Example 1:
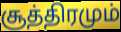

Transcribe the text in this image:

சூத்திரமும்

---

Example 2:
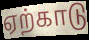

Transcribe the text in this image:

ஏற்காடு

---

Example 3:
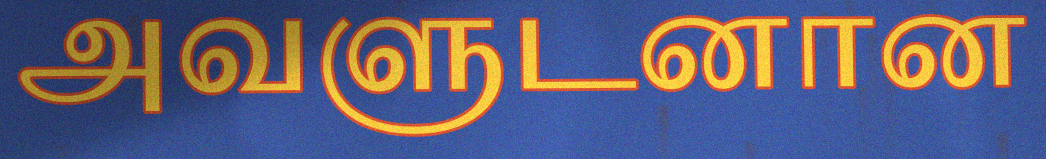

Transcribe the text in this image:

அவளுடனான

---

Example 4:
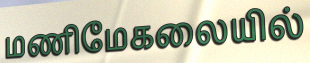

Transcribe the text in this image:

மணிமேகலையில்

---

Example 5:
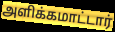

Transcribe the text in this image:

அளிக்கமாட்டார்